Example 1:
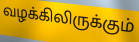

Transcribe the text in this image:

வழக்கிலிருக்கும்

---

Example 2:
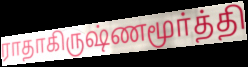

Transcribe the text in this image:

ராதாகிருஷ்ணமூர்த்தி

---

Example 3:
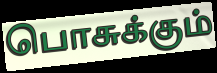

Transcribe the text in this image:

பொசுக்கும்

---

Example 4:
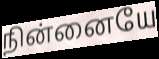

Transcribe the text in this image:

நின்னையே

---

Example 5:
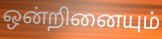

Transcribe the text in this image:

ஒன்றினையும்